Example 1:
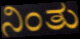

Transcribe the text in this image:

ನಿಂತು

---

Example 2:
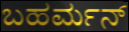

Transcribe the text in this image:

ಬಹರ್ಮನ್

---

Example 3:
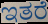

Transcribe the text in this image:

ಇತರೆ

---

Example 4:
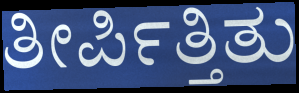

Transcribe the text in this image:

ತೀರ್ಪಿತ್ತಿತು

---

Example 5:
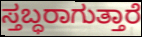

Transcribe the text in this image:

ಸ್ತಬ್ಧರಾಗುತ್ತಾರೆ